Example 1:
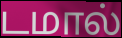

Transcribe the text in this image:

டமால்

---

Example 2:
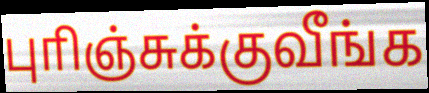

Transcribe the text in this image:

புரிஞ்சுக்குவீங்க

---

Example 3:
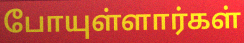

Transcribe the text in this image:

போயுள்ளார்கள்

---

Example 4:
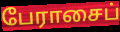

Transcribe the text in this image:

பேராசைப்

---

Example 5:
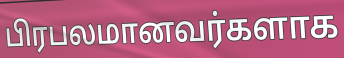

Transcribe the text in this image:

பிரபலமானவர்களாக